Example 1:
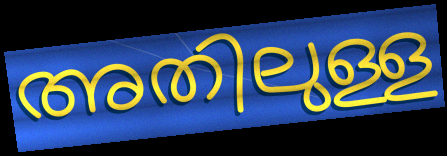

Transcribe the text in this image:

അതിലുള്ള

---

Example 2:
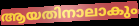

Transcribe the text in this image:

ആയതിനാലാകും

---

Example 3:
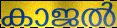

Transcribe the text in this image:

കാജൽ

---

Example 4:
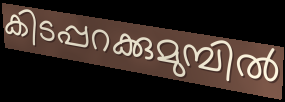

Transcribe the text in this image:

കിടപ്പറക്കുമുമ്പിൽ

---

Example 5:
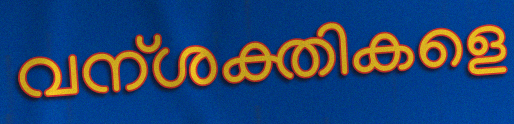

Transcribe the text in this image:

വന്ശക്തികളെ